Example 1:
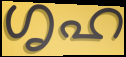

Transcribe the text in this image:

ഗൃഹ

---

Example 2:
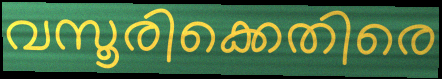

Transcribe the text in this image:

വസൂരിക്കെതിരെ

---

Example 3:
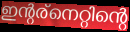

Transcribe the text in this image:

ഇന്റര്നെറ്റിന്റെ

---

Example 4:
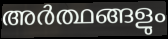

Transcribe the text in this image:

അർത്ഥങ്ങളും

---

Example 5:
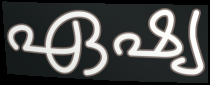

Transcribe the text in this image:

ഏഷ്യ